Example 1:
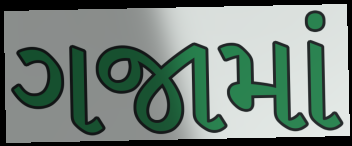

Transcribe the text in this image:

ગજામાં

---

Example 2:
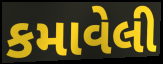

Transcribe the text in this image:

કમાવેલી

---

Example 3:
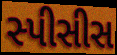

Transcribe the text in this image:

સ્પીસીસ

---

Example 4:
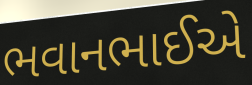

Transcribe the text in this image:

ભવાનભાઈએ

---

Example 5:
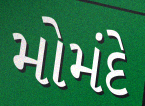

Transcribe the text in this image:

મોમંદે